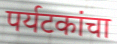
पर्यटकांचा